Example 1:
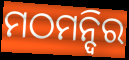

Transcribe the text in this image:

ମଠମନ୍ଦିର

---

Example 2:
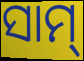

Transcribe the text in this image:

ସାମ୍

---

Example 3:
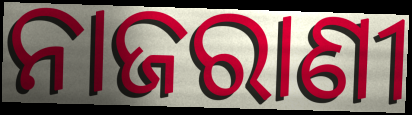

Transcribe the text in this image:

ନାଜରାଣୀ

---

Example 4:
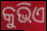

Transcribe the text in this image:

କୁଭିଏ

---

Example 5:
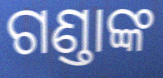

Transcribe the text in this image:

ଗଣ୍ଡାଙ୍କ